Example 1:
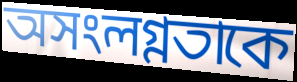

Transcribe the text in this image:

অসংলগ্নতাকে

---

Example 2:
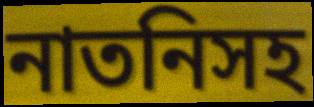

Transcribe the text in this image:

নাতনিসহ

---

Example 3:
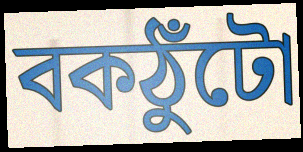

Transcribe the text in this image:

বকঠুঁটো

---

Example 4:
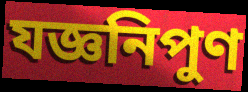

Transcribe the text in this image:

যজ্ঞনিপুণ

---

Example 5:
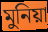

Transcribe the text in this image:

মুনিয়া